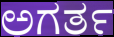
ಅಗರ್ತ